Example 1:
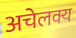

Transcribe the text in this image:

अचेलक्य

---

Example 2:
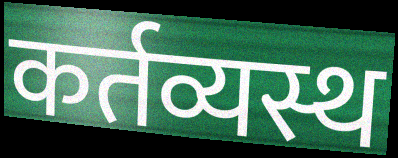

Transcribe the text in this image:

कर्तव्यस्थ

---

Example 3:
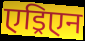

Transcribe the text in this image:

एड्रिएन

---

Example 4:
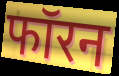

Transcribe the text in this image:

फॉरन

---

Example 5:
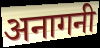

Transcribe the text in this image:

अनागनी